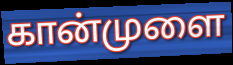
கான்முளை